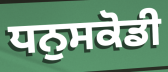
ਧਨੁਸਕੋਡੀ